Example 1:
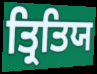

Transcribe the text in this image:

ਤ੍ਰਿਤਿਯ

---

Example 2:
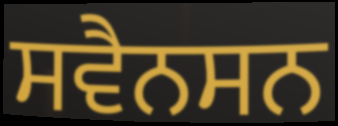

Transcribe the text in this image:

ਸਵੈਨਸਨ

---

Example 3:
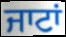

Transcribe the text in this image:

ਜਾਟਾਂ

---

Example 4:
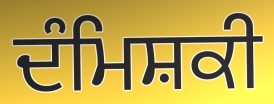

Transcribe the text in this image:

ਦੰਮਿਸ਼ਕੀ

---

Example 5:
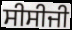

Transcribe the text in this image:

ਸੀਸੀਜੀ